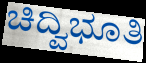
ಚಿದ್ವಿಭೂತಿ